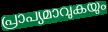
പ്രാപ്യമാവുകയും